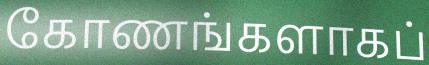
கோணங்களாகப்